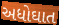
અધોઘાત